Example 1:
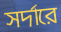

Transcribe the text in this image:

সর্দারে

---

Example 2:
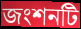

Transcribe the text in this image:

জংশনটি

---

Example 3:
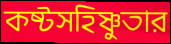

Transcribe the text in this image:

কষ্টসহিষ্ণুতার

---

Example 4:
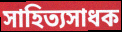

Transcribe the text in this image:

সাহিত্যসাধক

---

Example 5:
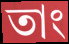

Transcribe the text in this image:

তাং